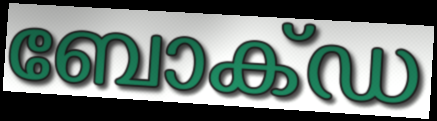
ബോക്ഡ